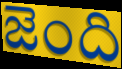
జెంది